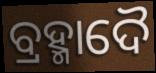
ବ୍ରହ୍ମାଦୈ